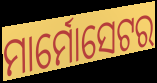
ମାର୍ମୋସେଟର